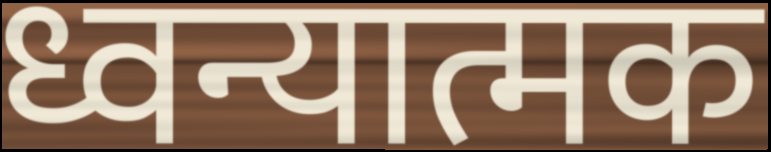
ध्वन्यात्मक